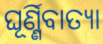
ଘୂର୍ଣ୍ଣିବାତ୍ୟା